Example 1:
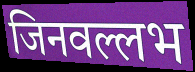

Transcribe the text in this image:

जिनवल्लभ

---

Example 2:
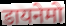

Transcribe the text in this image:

डायनेमो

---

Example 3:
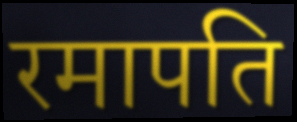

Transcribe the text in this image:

रमापति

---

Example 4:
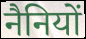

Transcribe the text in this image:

नैनियों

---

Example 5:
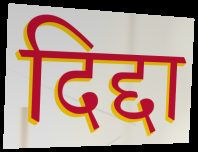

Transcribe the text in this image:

दिद्दा